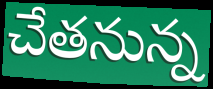
చేతనున్న